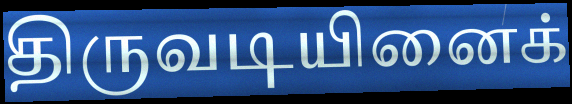
திருவடியினைக்